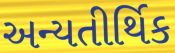
અન્યતીર્થિક